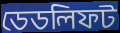
ডেডলিফট